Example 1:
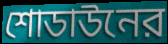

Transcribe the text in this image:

শোডাউনের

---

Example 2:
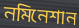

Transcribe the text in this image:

নমিনেশান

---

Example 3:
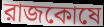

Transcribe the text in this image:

রাজকোষে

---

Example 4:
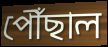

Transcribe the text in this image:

পৌঁছাল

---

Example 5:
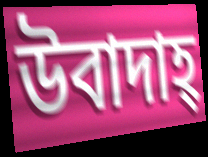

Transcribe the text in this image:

উবাদাহ্